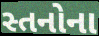
સ્તનોના